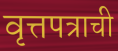
वृत्तपत्राची